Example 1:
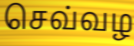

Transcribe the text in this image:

செவ்வழ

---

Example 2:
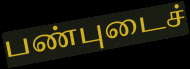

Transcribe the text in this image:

பண்புடைச்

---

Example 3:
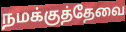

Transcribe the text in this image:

நமக்குத்தேவை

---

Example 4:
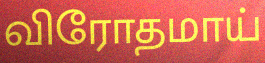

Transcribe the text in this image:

விரோதமாய்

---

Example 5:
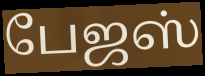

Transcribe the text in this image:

பேஜஸ்